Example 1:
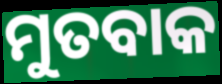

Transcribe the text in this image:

ମୁତବାକ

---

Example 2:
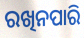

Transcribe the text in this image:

ରଖିନପାରି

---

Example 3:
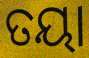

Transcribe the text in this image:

ତୟା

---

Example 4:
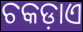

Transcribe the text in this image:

ଚକଡ଼ାଏ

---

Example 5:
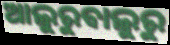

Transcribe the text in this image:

ଆଲୁରୁବାଲୁରୁ